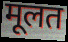
मूलत